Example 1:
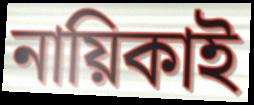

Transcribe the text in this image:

নায়িকাই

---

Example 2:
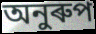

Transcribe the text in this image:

অনুৰুপ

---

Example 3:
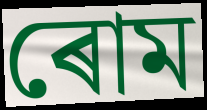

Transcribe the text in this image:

ৰোম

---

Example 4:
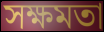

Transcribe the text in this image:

সক্ষমতা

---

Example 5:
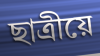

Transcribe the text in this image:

ছাত্ৰীয়ে